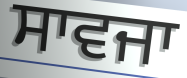
ਸਾਵਜਾ